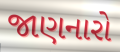
જાણનારો